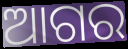
ଆଗର